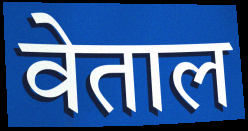
वेताल